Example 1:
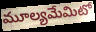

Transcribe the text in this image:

మూల్యమేమిటో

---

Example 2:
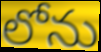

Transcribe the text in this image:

లోను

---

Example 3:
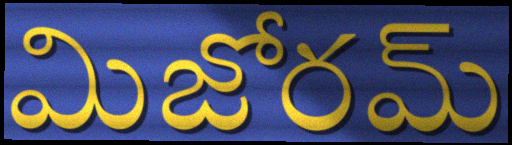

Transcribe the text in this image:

మిజోరమ్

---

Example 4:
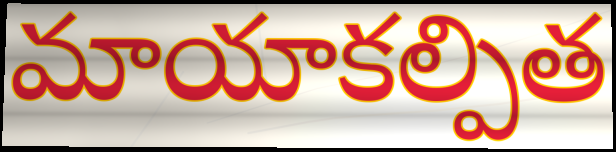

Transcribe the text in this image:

మాయాకల్పిత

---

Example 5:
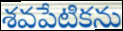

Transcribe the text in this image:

శవపేటికను